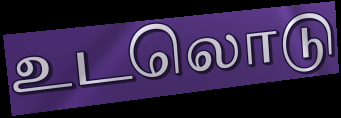
உடலொடு